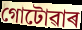
গোটোৱাৰ